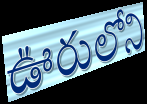
ఊరులోని